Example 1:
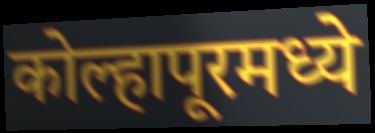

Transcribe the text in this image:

कोल्हापूरमध्ये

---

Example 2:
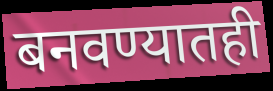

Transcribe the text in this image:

बनवण्यातही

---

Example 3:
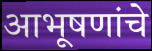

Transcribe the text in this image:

आभूषणांचे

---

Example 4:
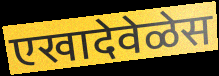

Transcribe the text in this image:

एखादेवेळेस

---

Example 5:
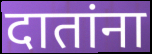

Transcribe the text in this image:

दातांना